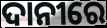
ଦାନୀରେ